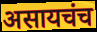
असायचंच